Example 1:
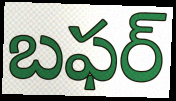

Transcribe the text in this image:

బఫర్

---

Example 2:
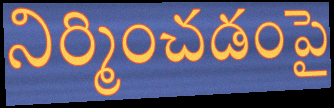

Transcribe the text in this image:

నిర్మించడంపై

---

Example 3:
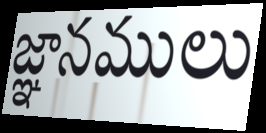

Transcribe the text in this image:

జ్ఞానములు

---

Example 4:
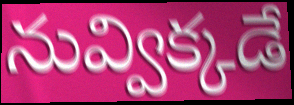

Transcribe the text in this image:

నువ్విక్కడే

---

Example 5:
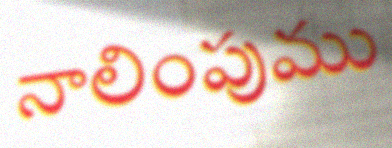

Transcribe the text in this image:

నాలింపుము